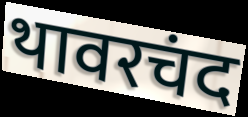
थावरचंद